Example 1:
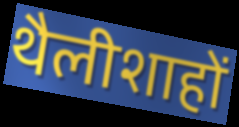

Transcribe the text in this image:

थैलीशाहों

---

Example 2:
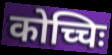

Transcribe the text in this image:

कोच्चिः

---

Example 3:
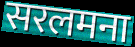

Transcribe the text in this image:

सरलमना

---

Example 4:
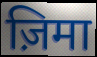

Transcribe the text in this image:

ज़िमा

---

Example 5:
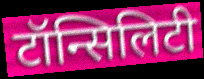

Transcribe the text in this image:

टॉन्सिलिटी